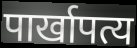
पार्खापत्य